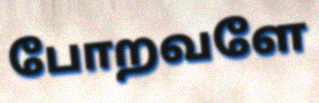
போறவளே